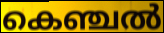
കെഞ്ചൽ